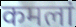
कमलां